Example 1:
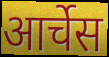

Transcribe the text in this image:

आर्चेस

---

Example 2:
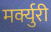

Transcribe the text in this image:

मर्क्युरी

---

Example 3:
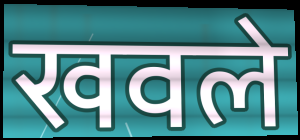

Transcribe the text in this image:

खवले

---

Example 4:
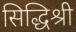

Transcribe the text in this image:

सिद्धिश्री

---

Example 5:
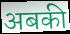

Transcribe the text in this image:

अबकी